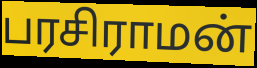
பரசிராமன்